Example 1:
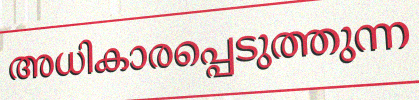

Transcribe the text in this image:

അധികാരപ്പെടുത്തുന്ന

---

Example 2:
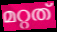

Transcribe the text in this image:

മറ്റത്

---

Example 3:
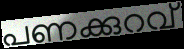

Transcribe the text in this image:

പണക്കുറവ്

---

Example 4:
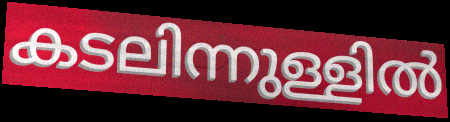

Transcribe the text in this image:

കടലിന്നുള്ളിൽ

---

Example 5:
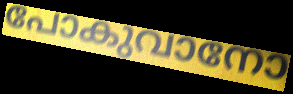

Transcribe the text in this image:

പോകുവാനോ